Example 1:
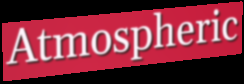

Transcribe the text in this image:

Atmospheric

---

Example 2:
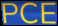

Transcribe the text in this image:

PCE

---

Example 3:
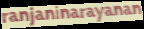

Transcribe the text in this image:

ranjaninarayanan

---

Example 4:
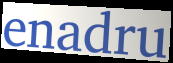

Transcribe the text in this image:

enadru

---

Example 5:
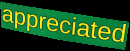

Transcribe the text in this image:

appreciated